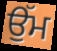
ਉੱਮ